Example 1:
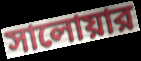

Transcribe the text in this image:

সালোয়ার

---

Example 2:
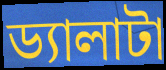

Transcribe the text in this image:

ড্যালাটা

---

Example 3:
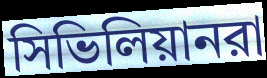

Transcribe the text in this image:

সিভিলিয়ানরা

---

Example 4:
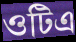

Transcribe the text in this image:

ওটিএ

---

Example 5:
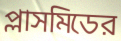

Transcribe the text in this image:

প্লাসমিডের